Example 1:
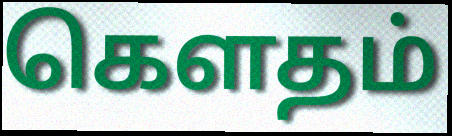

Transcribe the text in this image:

கௌதம்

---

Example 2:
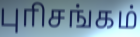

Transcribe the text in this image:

புரிசங்கம்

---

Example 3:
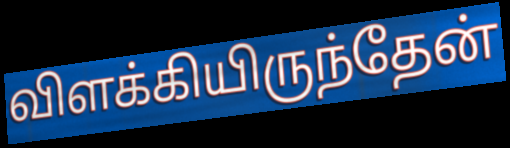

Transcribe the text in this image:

விளக்கியிருந்தேன்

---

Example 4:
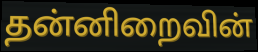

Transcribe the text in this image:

தன்னிறைவின்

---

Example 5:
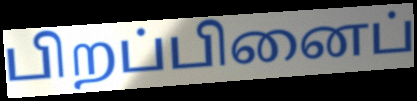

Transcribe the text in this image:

பிறப்பினைப்